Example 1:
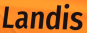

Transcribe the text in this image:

Landis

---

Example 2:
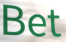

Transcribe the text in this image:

Bet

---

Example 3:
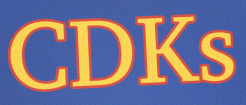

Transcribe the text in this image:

CDKs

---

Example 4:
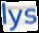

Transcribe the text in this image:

lys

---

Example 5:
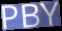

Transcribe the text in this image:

PBY